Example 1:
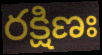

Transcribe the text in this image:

రక్షిణః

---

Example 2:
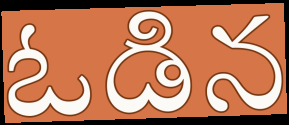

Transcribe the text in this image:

ఓడిన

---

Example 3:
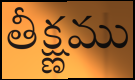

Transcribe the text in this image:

తీక్ష్ణము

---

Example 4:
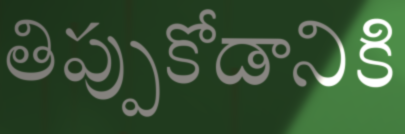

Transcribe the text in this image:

తిప్పుకోడానికి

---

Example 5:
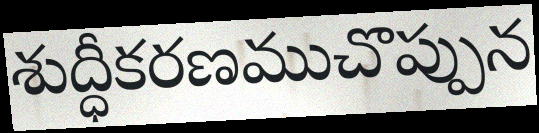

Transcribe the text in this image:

శుద్ధీకరణముచొప్పున